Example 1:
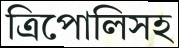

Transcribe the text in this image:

ত্রিপোলিসহ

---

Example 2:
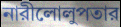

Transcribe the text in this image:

নারীলোলুপতার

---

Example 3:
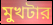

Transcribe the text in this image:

মুখটার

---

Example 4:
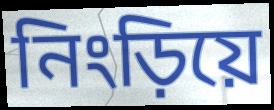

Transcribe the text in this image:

নিংড়িয়ে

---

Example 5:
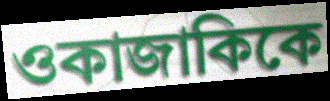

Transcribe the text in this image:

ওকাজাকিকে